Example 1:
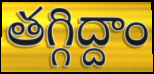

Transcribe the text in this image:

తగ్గిద్దాం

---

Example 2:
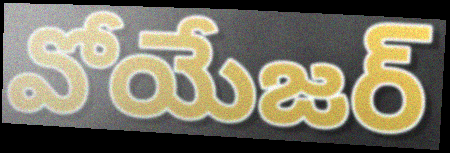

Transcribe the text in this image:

వోయేజర్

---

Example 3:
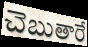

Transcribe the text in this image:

చెబుతారే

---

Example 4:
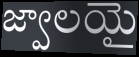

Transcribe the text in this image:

జ్వాలయై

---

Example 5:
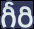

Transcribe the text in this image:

గీరి